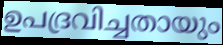
ഉപദ്രവിച്ചതായും